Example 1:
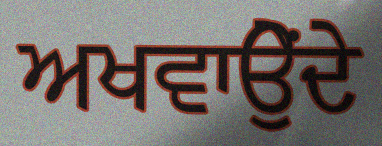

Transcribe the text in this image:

ਅਖਵਾਉੇਂਦੇ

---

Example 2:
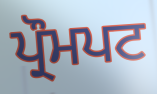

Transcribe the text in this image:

ਪ੍ਰੌਮਪਟ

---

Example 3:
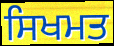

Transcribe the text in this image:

ਸਿਖਮਤ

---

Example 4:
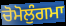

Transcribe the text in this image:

ਚੋਮੋਲੁੰਗਮਾ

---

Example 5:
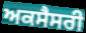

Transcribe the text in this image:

ਅਕਸੈਸਰੀ